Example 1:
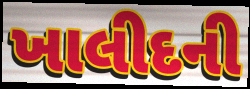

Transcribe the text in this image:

ખાલીદની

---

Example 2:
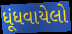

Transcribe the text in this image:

ધૂંધવાયેલો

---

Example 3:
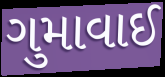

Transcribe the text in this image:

ગુમાવાઈ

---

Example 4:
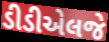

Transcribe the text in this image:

ડીડીએલજે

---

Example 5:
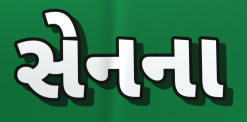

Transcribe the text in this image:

સેનના